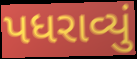
પધરાવ્યું